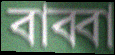
বাব্বা